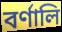
বর্ণালি